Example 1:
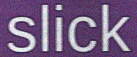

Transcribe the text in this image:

slick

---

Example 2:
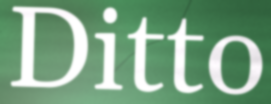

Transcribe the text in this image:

Ditto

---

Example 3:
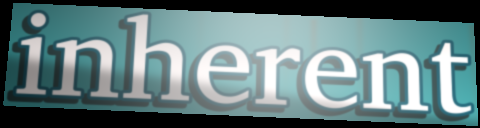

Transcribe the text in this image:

inherent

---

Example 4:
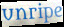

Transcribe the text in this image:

unripe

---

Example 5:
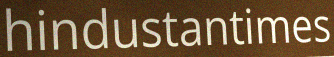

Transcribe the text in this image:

hindustantimes